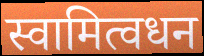
स्वामित्वधन